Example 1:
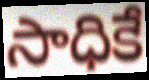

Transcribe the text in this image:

సాధికే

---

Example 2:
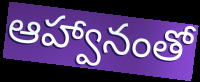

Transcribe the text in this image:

ఆహ్వానంతో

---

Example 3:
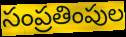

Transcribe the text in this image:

సంప్రతింపుల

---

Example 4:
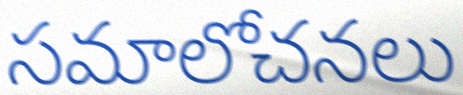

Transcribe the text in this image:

సమాలోచనలు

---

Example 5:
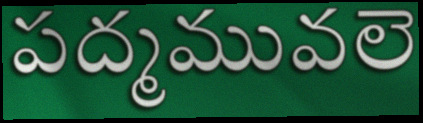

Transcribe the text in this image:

పద్మమువలె